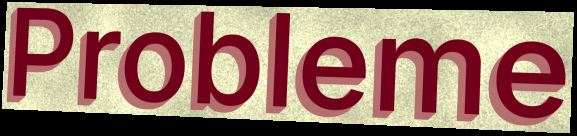
Probleme